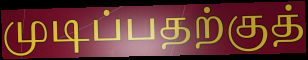
முடிப்பதற்குத்